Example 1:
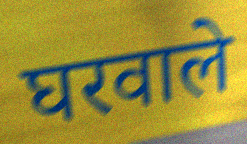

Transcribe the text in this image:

घरवाले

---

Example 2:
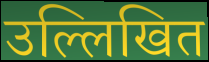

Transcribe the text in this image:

उल्लिखित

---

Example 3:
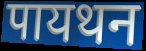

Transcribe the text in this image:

पायथन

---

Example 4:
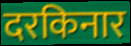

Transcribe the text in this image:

दरकिनार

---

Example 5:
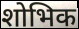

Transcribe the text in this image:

शोभिक